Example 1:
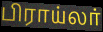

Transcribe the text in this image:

பிராய்லர்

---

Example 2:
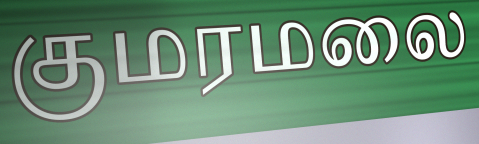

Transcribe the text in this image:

குமரமலை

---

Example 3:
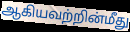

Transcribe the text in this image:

ஆகியவற்றின்மீது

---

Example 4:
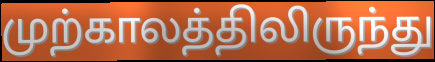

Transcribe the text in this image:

முற்காலத்திலிருந்து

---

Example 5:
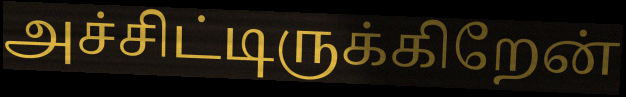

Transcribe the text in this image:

அச்சிட்டிருக்கிறேன்